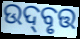
ଉଦ୍‌ବୃତ୍ତ